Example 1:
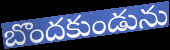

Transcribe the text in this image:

బొందకుండును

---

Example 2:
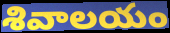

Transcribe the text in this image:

శివాలయం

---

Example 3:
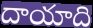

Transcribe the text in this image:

దాయాది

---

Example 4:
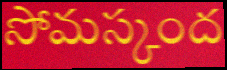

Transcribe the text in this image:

సోమస్కంద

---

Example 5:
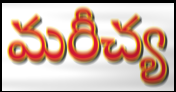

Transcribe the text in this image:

మరీచ్య